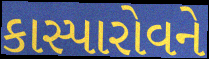
કાસ્પારોવને